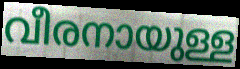
വീരനായുള്ള